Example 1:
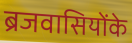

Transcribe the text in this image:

ब्रजवासियोंके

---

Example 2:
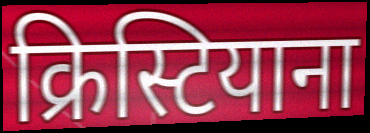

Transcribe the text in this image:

क्रिस्टियाना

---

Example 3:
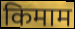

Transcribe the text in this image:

किमाम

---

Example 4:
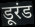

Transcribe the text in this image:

डूरंड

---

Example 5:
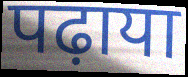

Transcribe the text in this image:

पढ़ाया